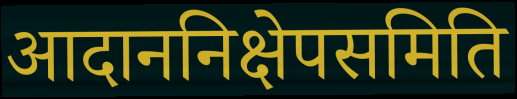
आदाननिक्षेपसमिति